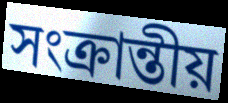
সংক্ৰান্তীয়